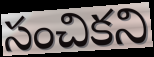
సంచికని